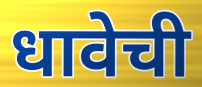
धावेची